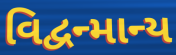
વિદ્વન્માન્ય